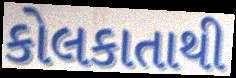
કોલકાતાથી